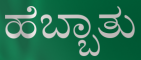
ಹೆಬ್ಬಾತು